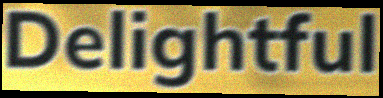
Delightful